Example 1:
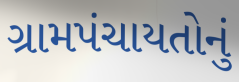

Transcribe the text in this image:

ગ્રામપંચાયતોનું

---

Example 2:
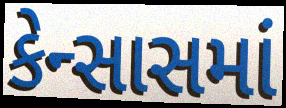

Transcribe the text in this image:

કેન્સાસમાં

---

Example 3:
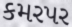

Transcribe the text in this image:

કમરપર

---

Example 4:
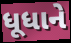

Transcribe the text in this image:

ધૂધાને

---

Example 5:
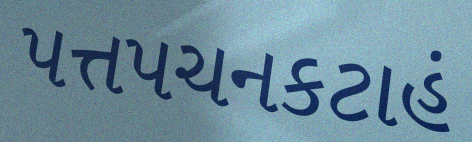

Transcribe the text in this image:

પત્તપચનકટાહં